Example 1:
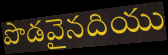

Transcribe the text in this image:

పొడవైనదియు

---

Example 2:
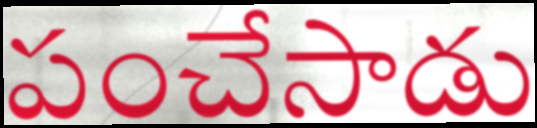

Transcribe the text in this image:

పంచేసాడు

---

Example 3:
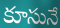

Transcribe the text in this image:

కూసునే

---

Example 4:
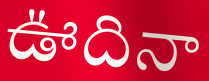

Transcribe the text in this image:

ఊదినా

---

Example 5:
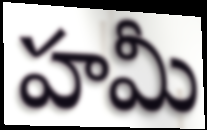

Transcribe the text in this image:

హమీ